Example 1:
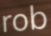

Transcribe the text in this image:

rob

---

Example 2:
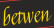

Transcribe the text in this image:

betwen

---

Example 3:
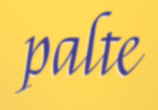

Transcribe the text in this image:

palte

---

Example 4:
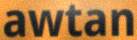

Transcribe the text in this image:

awtan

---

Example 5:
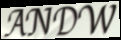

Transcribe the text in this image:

ANDW